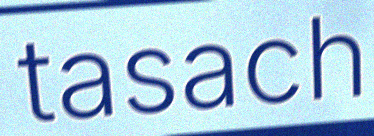
tasach